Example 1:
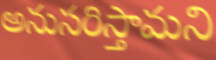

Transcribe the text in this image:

అనుసరిస్తామని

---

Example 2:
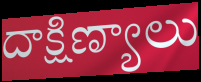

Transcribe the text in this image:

దాక్షిణ్యాలు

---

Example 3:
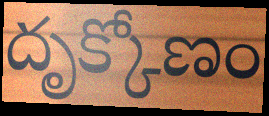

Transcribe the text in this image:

దృక్కోణం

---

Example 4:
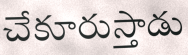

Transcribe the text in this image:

చేకూరుస్తాడు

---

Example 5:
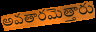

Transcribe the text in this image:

అవతారమెత్తారు